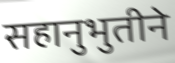
सहानुभुतीने